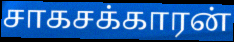
சாகசக்காரன்